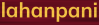
lahanpani